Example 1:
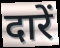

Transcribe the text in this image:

दारें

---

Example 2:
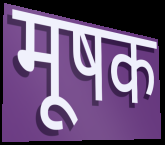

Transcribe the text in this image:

मूषक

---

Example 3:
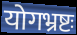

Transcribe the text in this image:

योगभ्रष्टः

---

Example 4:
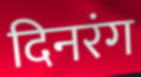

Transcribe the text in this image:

दिनरंग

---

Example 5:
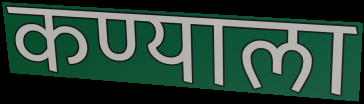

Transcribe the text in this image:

कण्याला